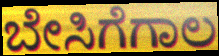
ಬೇಸಿಗೆಗಾಲ